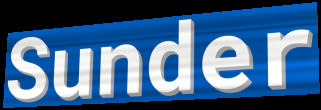
Sunder